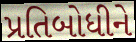
પ્રતિબોધીને